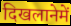
दिखलानेमें